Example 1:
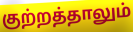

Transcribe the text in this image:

குற்றத்தாலும்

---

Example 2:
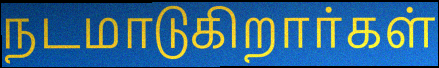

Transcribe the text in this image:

நடமாடுகிறார்கள்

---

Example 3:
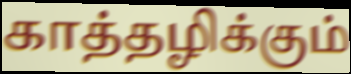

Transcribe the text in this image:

காத்தழிக்கும்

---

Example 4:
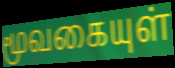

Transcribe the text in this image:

மூவகையுள்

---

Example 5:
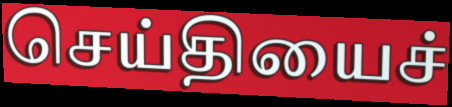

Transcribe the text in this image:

செய்தியைச்